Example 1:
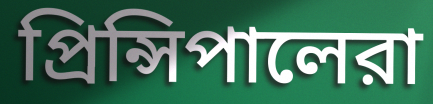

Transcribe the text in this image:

প্রিন্সিপালেরা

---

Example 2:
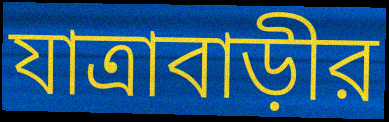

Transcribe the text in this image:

যাত্রাবাড়ীর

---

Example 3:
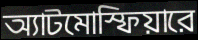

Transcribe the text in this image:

অ্যাটমোস্ফিয়ারে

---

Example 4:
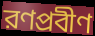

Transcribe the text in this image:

রণপ্রবীণ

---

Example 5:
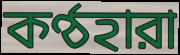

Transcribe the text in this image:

কণ্ঠহারা